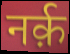
नर्क़